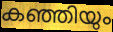
കഞ്ഞിയും